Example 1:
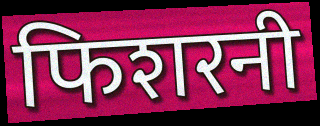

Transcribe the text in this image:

फिशरनी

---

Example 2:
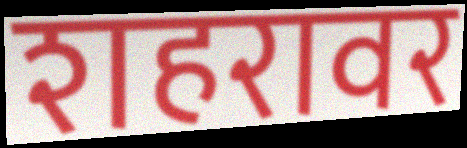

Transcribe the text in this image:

शहरावर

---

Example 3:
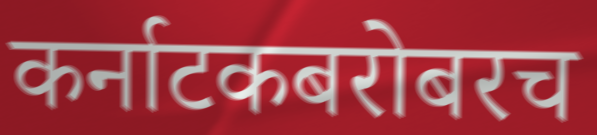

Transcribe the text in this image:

कर्नाटकबरोबरच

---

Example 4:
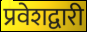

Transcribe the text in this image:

प्रवेशद्वारी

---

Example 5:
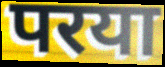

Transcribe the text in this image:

परया